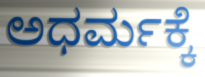
ಅಧರ್ಮಕ್ಕೆ